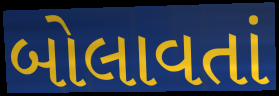
બોલાવતાં